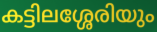
കട്ടിലശ്ശേരിയും